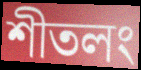
শীতলং